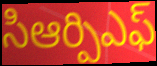
సిఆర్పిఎఫ్